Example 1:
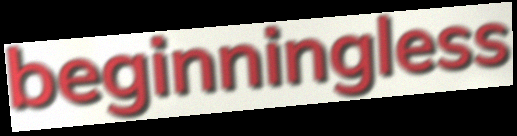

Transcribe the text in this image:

beginningless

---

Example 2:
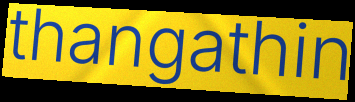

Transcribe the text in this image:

thangathin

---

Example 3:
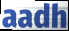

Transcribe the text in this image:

aadh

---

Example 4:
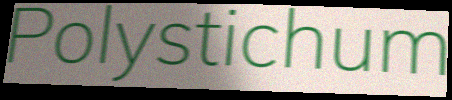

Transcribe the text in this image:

Polystichum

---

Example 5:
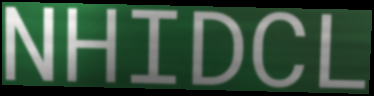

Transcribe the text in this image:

NHIDCL